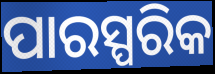
ପାରସ୍ପରିକ